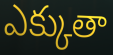
ఎక్కుతా